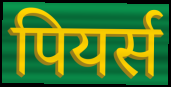
पियर्स